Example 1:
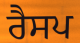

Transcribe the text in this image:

ਰੈਸਪ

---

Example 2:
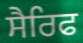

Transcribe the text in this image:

ਸੈਰਿਫ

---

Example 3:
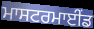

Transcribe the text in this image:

ਮਾਸਟਰਮਾਈਂਡ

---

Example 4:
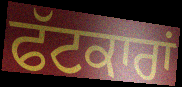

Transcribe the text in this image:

ਫੱਟਕਾਰਾਂ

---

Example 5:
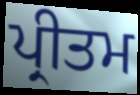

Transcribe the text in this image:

ਪ੍ਰੀਤਮ